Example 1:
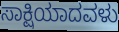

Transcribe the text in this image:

ಸಾಕ್ಷಿಯಾದವಳು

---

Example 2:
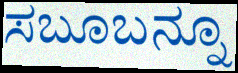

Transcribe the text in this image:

ಸಬೂಬನ್ನೂ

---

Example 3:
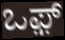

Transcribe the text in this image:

ಒಫ಼್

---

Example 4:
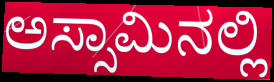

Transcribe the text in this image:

ಅಸ್ಸಾಮಿನಲ್ಲಿ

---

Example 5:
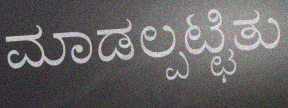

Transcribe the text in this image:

ಮಾಡಲ್ಪಟ್ಟಿತು